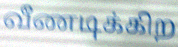
வீணடிக்கிற